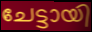
ചേട്ടായി